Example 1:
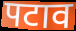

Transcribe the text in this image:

पटाव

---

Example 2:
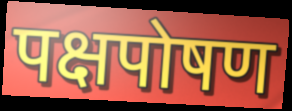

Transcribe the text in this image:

पक्षपोषण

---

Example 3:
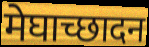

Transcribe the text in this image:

मेघाच्छादन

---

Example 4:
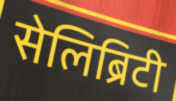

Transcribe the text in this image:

सेलिब्रिटी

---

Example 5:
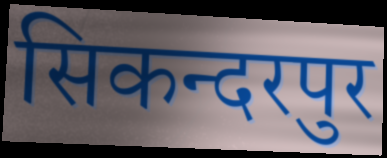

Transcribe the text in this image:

सिकन्दरपुर